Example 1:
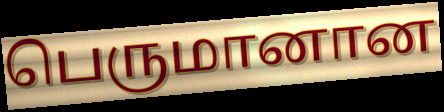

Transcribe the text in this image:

பெருமானான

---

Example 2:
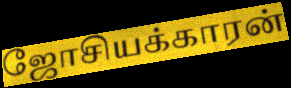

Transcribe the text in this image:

ஜோசியக்காரன்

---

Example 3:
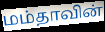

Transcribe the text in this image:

மம்தாவின்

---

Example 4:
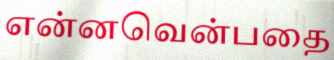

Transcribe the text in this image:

என்னவென்பதை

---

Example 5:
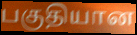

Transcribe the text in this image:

பகுதியான